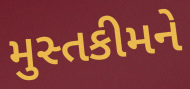
મુસ્તકીમને